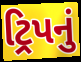
ટ્રિપનું